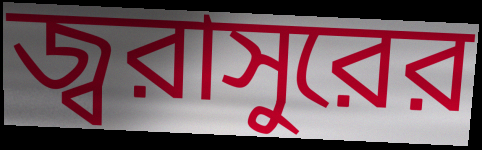
জ্বরাসুরের